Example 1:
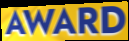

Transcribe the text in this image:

AWARD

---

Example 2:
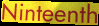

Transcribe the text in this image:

Ninteenth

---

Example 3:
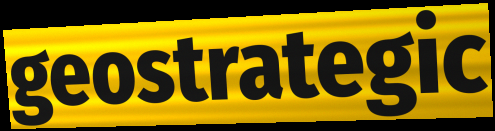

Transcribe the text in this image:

geostrategic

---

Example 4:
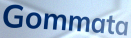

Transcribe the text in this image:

Gommata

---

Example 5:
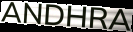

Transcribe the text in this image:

ANDHRA